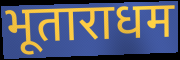
भूताराधम